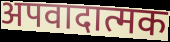
अपवादात्मक